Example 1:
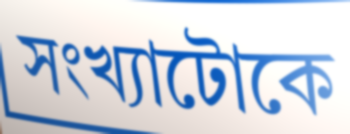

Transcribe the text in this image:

সংখ্যাটোকে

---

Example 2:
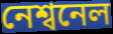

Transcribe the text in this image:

নেশ্বনেল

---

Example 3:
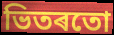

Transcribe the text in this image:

ভিতৰতো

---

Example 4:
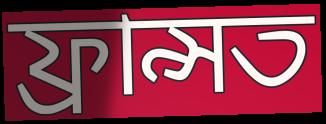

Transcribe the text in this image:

ফ্ৰান্সত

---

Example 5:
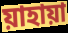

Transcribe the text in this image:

য়াহায়া